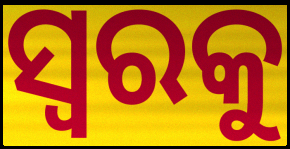
ସ୍ୱରକୁ